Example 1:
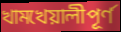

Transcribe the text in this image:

খামখেয়ালীপূর্ণ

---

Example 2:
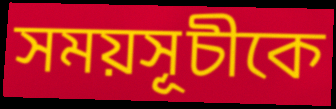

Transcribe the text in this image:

সময়সূচীকে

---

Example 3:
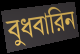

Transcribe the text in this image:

বুধবারিন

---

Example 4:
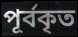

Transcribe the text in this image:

পূর্বকৃত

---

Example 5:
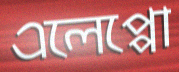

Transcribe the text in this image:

এলেপ্পো